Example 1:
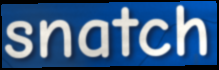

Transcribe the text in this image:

snatch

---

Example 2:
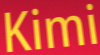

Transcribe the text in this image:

Kimi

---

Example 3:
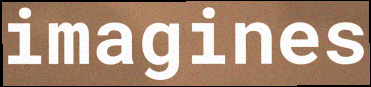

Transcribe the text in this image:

imagines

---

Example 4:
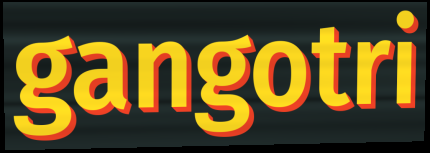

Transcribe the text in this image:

gangotri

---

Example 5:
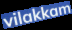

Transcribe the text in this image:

vilakkam